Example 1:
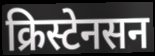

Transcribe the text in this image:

क्रिस्टेनसन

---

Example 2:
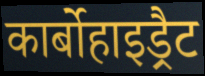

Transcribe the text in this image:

कार्बोहाइड्रैट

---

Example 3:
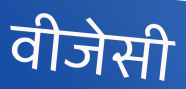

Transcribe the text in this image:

वीजेसी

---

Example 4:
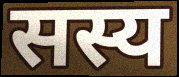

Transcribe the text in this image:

सस्य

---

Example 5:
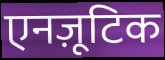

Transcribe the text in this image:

एनज़ूटिक